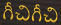
గీచిగీచి